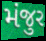
મંજુર